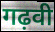
गढ़वी